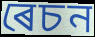
ৰেচন